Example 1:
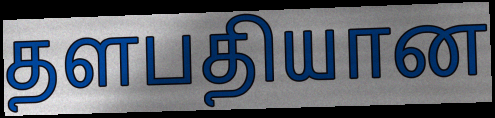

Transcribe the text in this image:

தளபதியான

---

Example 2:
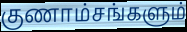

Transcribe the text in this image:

குணாம்சங்களும்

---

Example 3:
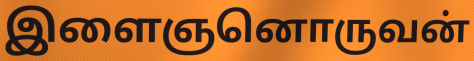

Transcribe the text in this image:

இளைஞனொருவன்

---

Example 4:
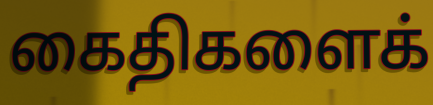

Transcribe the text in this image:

கைதிகளைக்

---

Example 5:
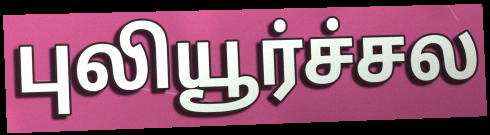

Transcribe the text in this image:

புலியூர்ச்சல